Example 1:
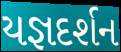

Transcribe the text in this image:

યજ્ઞદર્શન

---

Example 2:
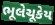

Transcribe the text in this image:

ભૂલેચૂકેય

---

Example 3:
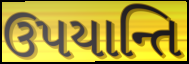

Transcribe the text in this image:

ઉપયાન્તિ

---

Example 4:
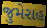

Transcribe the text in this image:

જુમેરાહ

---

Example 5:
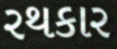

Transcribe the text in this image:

રથકાર